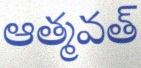
ఆత్మవత్